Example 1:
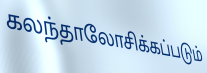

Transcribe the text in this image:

கலந்தாலோசிக்கப்படும்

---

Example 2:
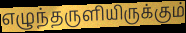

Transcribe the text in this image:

எழுந்தருளியிருக்கும்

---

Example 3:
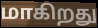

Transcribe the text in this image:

மாகிறது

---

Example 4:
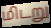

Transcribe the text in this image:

மிடறு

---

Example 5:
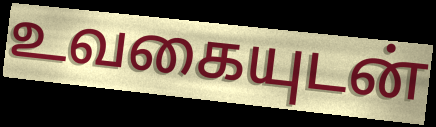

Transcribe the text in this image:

உவகையுடன்